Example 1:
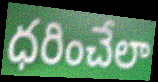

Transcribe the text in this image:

ధరించేలా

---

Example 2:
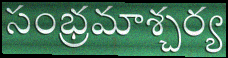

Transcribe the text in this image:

సంభ్రమాశ్చర్య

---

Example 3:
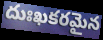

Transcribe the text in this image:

దుఃఖకరమైన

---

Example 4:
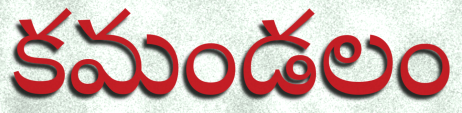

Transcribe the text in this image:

కమండలం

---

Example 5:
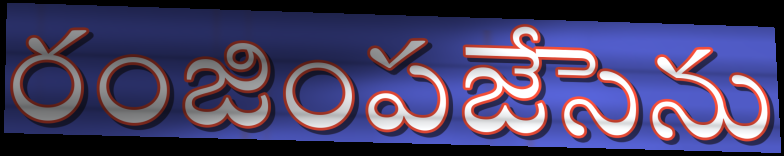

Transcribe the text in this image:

రంజింపజేసెను